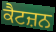
ਕੈਟਜ਼ਨ